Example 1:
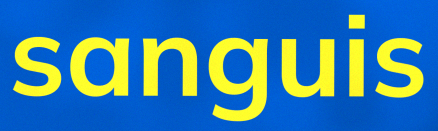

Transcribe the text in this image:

sanguis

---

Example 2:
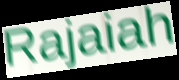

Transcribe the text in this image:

Rajaiah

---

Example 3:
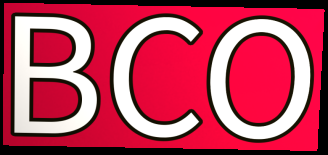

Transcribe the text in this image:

BCO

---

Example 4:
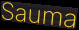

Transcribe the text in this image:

Sauma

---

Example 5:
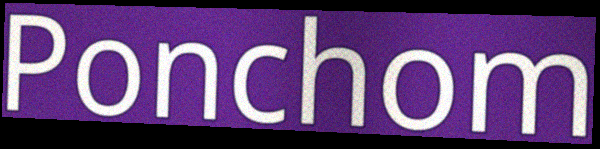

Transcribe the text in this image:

Ponchom